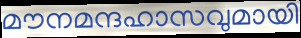
മൗനമന്ദഹാസവുമായി